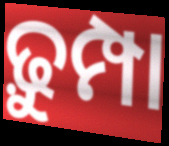
ଢ଼ୁମ୍ପା